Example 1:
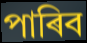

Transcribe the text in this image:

পাৰিব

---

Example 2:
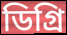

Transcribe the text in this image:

ডিগ্ৰি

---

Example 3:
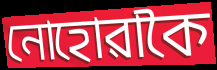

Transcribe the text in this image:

নোহোৱাকৈ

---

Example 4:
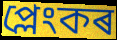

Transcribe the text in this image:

প্লেংকৰ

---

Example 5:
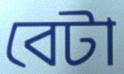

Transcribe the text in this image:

বেটা